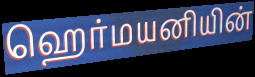
ஹெர்மயனியின்